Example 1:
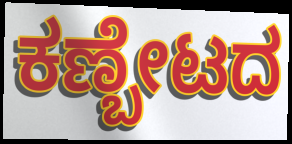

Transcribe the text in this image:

ಕಣ್ಬೇಟದ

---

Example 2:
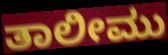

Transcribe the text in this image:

ತಾಲೀಮು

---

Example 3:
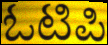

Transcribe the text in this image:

ಓಟಿಪಿ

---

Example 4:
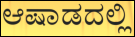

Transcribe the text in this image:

ಆಷಾಡದಲ್ಲಿ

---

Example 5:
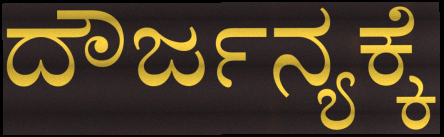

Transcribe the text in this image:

ದೌರ್ಜನ್ಯಕ್ಕೆ